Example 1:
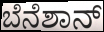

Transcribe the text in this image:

ಬೆನೆಶಾನ್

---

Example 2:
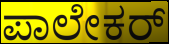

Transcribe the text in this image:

ಪಾಲೇಕರ್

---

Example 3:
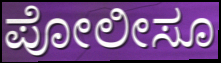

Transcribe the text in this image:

ಪೋಲೀಸೂ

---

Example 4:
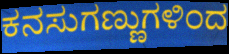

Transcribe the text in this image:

ಕನಸುಗಣ್ಣುಗಳಿಂದ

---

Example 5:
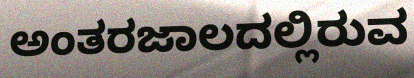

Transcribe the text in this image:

ಅಂತರಜಾಲದಲ್ಲಿರುವ